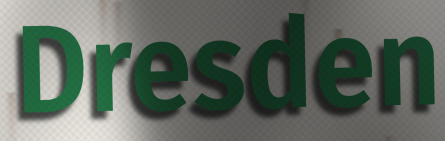
Dresden